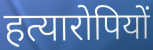
हत्यारोपियों